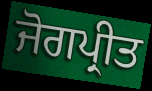
ਜੋਗਪ੍ਰੀਤ